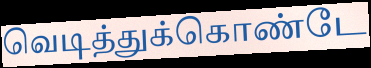
வெடித்துக்கொண்டே